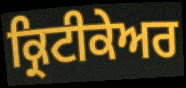
ਕ੍ਰਿਟੀਕੇਅਰ